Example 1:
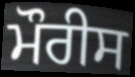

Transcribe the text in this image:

ਮੌਰੀਸ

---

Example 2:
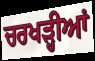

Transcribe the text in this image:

ਚਰਖੜ੍ਹੀਆਂ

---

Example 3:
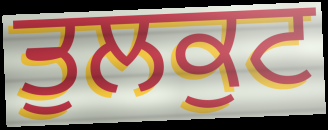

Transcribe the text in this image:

ਤੁਲਕੁਟ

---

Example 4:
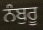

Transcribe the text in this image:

ਨੰਬੁਰੂ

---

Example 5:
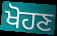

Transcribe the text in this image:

ਖੋਹਣ